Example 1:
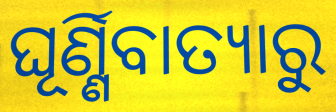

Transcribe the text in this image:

ଘୂର୍ଣ୍ଣିବାତ୍ୟାରୁ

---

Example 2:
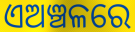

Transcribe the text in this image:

ଏଅଞ୍ଚଳରେ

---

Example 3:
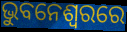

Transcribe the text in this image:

ଭୁବନେଶ୍ବରରେ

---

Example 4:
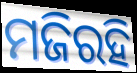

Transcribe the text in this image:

ମଜିରହି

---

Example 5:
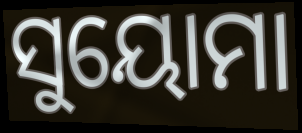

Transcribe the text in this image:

ସୁୟୋମା